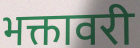
भक्तावरी